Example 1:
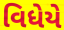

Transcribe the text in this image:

વિધેયે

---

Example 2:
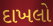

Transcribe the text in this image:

દાખલો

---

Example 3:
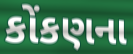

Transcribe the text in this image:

કોંકણના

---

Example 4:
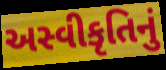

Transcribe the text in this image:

અસ્વીકૃતિનું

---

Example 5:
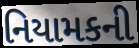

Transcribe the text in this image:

નિયામકની